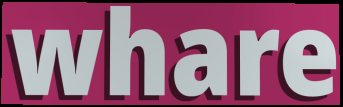
whare